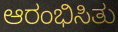
ಆರಂಭಿಸಿತು